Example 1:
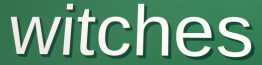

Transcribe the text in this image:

witches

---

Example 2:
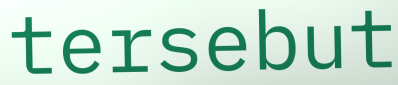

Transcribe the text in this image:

tersebut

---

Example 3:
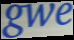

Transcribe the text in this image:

gwe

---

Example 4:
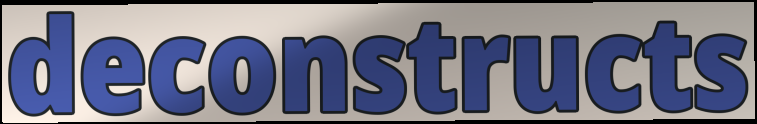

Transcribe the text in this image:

deconstructs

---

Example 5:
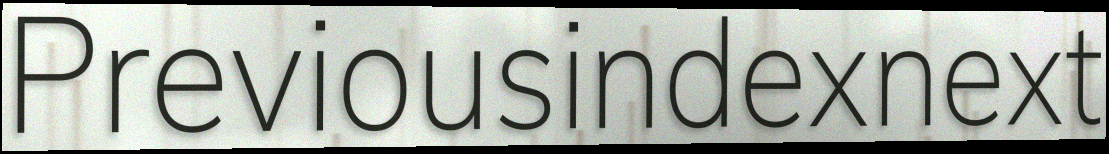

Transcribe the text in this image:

Previousindexnext